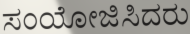
ಸಂಯೋಜಿಸಿದರು